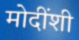
मोदींशी